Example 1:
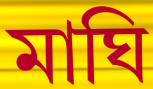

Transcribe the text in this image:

মাঘি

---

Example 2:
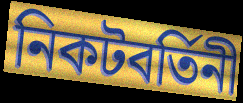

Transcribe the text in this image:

নিকটবর্তিনী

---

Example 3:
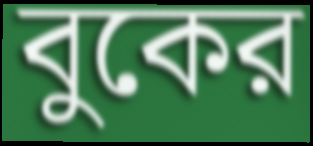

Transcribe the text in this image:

বুকের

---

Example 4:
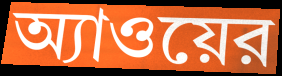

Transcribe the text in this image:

অ্যাওয়ের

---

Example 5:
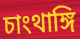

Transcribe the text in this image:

চাংথাঙ্গি